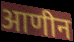
आणीन